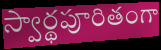
స్వార్థపూరితంగా